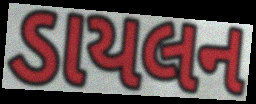
ડાયલન